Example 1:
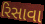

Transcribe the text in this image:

રિસાવા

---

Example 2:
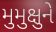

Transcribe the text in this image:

મુમુક્ષુને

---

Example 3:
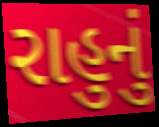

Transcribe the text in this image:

રાહુનું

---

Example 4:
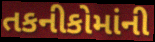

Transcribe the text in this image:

તકનીકોમાંની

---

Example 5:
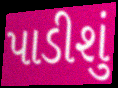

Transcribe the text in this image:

પાડીશું